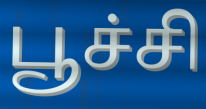
பூச்சி